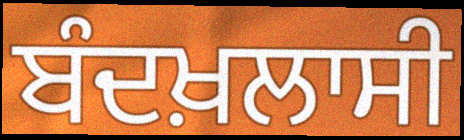
ਬੰਦਖ਼ਲਾਸੀ